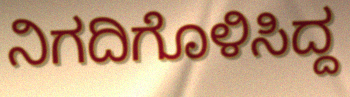
ನಿಗದಿಗೊಳಿಸಿದ್ದ